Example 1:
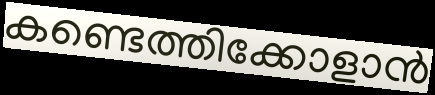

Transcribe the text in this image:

കണ്ടെത്തിക്കോളാൻ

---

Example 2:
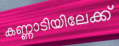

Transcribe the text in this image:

കണ്ണാടിയിലേക്ക്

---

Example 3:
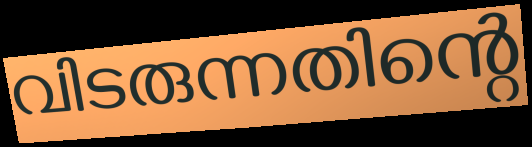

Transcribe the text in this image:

വിടരുന്നതിന്റെ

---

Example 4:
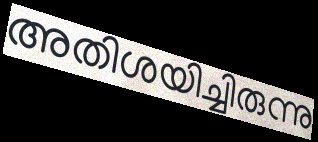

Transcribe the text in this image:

അതിശയിച്ചിരുന്നു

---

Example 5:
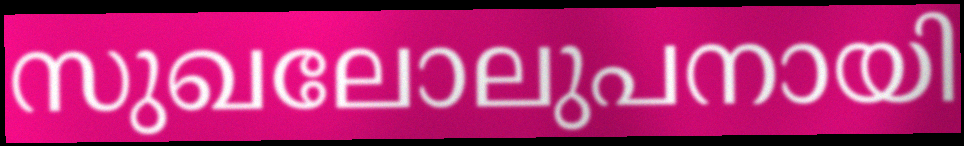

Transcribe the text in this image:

സുഖലോലുപനായി